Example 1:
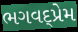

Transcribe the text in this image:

ભગવદ્પ્રેમ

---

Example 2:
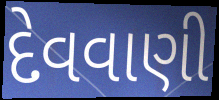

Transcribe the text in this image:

દેવવાણી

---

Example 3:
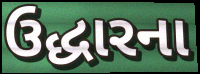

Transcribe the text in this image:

ઉદ્ધારના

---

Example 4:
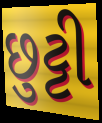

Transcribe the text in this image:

છુટ્ટી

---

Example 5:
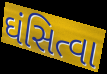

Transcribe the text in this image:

ઘંસિત્વા